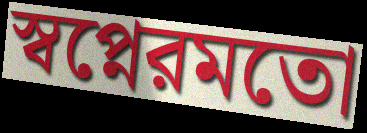
স্বপ্নেরমতো